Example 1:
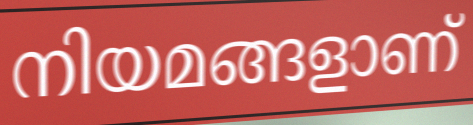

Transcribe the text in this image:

നിയമങ്ങളാണ്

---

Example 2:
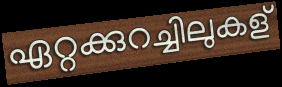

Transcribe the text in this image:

ഏറ്റക്കുറച്ചിലുകള്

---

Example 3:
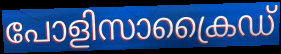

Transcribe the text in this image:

പോളിസാക്രൈഡ്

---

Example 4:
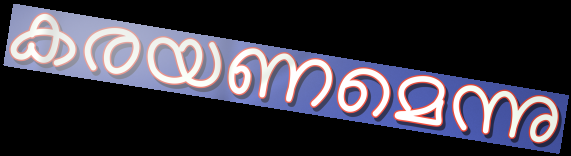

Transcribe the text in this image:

കരയണമെന്നു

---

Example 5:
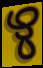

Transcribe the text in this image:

ഴു